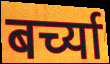
बर्च्या